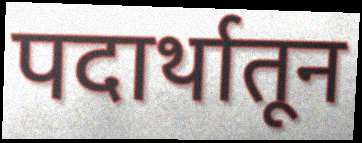
पदार्थातून